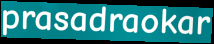
prasadraokar